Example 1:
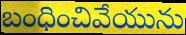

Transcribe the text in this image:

బంధించివేయును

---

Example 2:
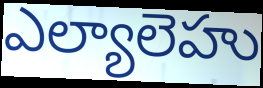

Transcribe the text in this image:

ఎల్యాలెహు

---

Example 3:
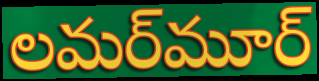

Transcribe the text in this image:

లమర్‌మూర్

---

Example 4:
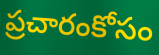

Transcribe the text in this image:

ప్రచారంకోసం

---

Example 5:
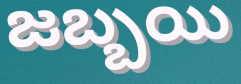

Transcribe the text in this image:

జబ్బయి